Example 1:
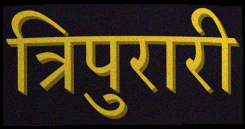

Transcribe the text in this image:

त्रिपुरारी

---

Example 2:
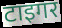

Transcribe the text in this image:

टाइगर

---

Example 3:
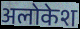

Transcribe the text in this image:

अलोकेश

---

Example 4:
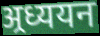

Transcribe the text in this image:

अ्रध्ययन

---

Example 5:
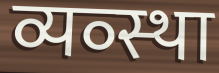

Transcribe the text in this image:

व्यव्स्था